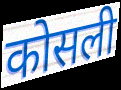
कोसली